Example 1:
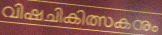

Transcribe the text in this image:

വിഷചികിത്സകനും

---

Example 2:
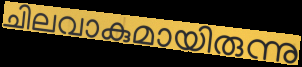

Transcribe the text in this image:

ചിലവാകുമായിരുന്നു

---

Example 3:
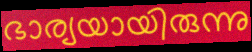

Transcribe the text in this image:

ഭാര്യയായിരുന്നു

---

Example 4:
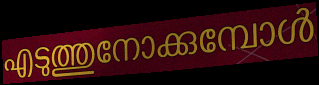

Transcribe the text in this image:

എടുത്തുനോക്കുമ്പോൾ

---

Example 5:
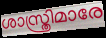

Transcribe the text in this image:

ശാസ്ത്രിമാരേ